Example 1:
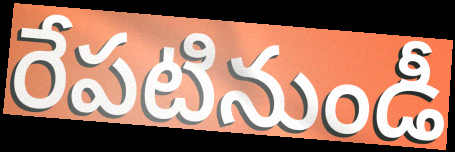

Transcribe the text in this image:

రేపటినుండీ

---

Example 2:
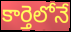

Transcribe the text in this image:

కార్తెలోనే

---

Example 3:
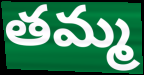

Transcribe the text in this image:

తమ్మ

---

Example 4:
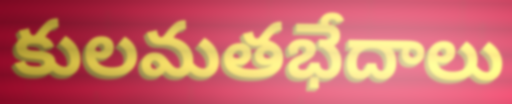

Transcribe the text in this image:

కులమతభేదాలు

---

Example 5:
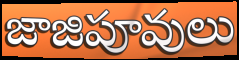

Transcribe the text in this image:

జాజిపూవులు